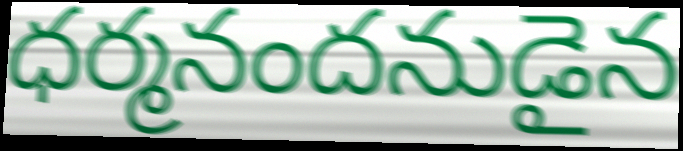
ధర్మనందనుడైన